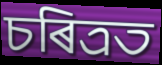
চৰিত্ৰত